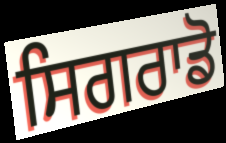
ਸਿਗਰਾਡੋ